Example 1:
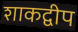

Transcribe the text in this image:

शाकद्वीप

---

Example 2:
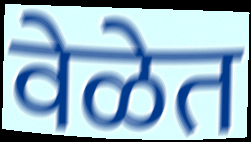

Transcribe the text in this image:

वेळेत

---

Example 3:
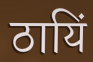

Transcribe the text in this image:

ठायिं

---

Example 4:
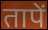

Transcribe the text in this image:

तापें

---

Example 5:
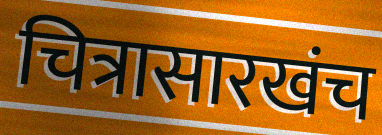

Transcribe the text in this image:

चित्रासारखंच